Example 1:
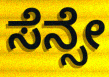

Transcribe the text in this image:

ಸೆನ್ಸೇ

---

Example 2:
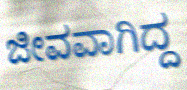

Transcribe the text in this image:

ಜೀವವಾಗಿದ್ದ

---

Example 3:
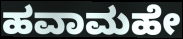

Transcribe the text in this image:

ಹವಾಮಹೇ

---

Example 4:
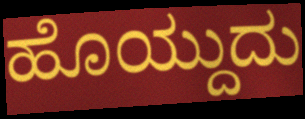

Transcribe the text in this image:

ಹೊಯ್ದುದು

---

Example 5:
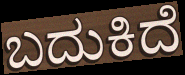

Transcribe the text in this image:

ಬದುಕಿದೆ